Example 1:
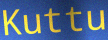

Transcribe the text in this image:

Kuttu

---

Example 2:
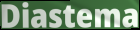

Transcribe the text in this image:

Diastema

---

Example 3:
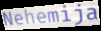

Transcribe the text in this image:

Nehemija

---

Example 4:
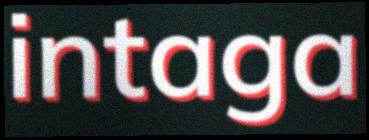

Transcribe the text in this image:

intaga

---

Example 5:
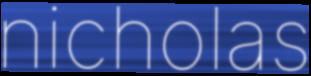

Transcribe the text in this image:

nicholas